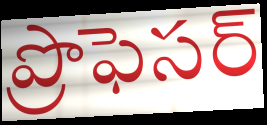
ప్రొఫెసర్